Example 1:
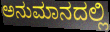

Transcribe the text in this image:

ಅನುಮಾನದಲ್ಲಿ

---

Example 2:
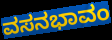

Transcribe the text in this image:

ವಸನಭಾವಂ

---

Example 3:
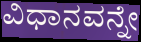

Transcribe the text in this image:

ವಿಧಾನವನ್ನೇ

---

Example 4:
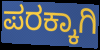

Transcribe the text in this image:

ಪರಕ್ಕಾಗಿ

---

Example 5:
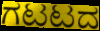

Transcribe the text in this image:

ಗಟಟದ